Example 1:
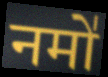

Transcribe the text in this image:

नमो॑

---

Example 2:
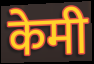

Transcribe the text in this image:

केमी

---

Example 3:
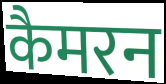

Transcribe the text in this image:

कैमरन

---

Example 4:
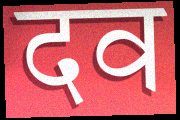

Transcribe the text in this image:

दव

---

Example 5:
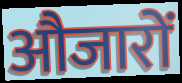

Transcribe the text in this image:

औजारों